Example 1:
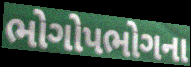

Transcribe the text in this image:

ભોગોપભોગના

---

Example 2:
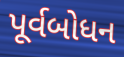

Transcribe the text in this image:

પૂર્વબોધન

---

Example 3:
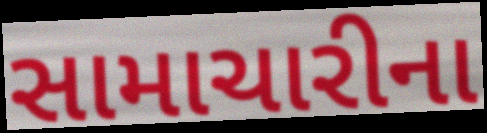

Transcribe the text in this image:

સામાચારીના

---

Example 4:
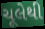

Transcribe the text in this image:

ચૂલેથી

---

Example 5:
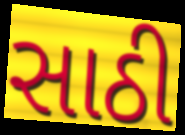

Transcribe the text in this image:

સાઠી